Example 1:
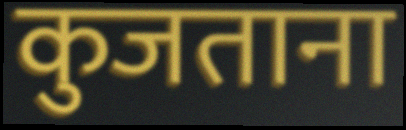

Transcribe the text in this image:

कुजताना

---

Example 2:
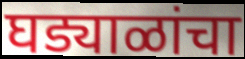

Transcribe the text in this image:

घड्याळांचा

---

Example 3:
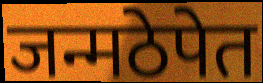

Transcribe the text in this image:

जन्मठेपेत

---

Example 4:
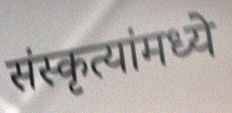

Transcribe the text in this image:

संस्कृत्यांमध्ये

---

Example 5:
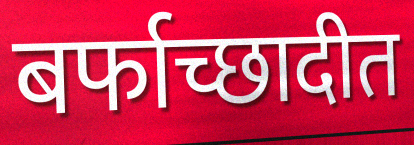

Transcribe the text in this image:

बर्फाच्छादीत